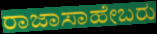
ರಾಜಾಸಾಹೇಬರು